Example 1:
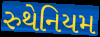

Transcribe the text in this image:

રુથેનિયમ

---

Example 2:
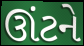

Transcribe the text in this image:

ઊંટને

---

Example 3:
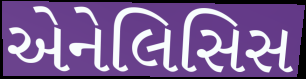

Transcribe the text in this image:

એનેલિસિસ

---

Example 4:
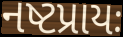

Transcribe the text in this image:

નષ્ટપ્રાયઃ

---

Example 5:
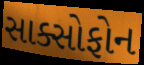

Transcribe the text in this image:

સાક્સોફોન